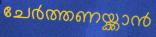
ചേർത്തണയ്ക്കാൻ